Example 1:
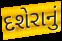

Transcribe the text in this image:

દશેરાનું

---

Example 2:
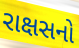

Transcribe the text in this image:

રાક્ષસનો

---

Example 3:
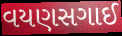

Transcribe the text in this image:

વયણસગાઈ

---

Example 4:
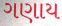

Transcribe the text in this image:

ગણાય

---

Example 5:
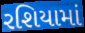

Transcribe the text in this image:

રશિયામાં